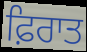
ਫ਼ਿਰਾਤ